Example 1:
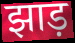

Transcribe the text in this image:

झाड़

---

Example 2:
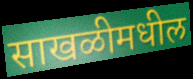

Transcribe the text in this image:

साखळीमधील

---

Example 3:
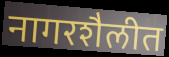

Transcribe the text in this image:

नागरशैलीत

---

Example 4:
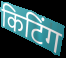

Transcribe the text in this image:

किटिंग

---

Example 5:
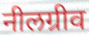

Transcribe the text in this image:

नीलग्रीव